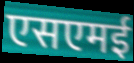
एसएमई